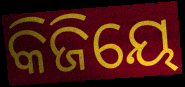
କିଜିୟେ